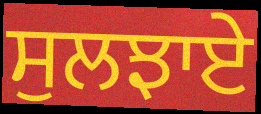
ਸੁਲਝਾਏ